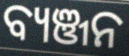
ବ୍ୟଞ୍ଜନ